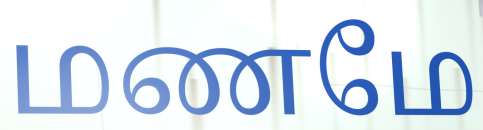
மணமே